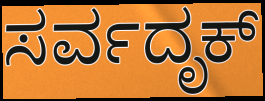
ಸರ್ವದೃಕ್